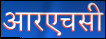
आरएचसी